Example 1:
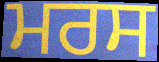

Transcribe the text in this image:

ਮਰਸ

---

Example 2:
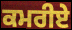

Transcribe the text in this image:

ਕਮਰੀਏ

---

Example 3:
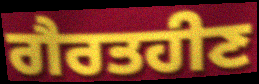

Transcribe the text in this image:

ਗੈਰਤਹੀਣ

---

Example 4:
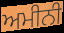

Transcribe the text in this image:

ਅਮੀਨੀ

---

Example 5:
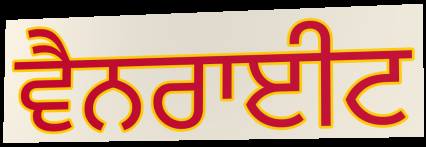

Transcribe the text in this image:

ਵੈਨਰਾਈਟ